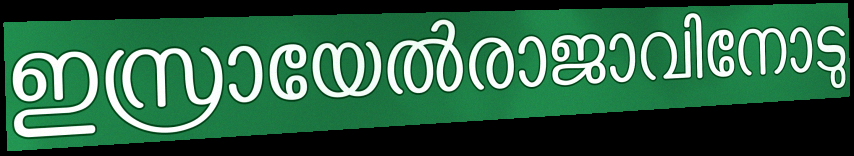
ഇസ്രായേൽരാജാവിനോടു